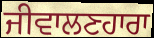
ਜੀਵਾਲਣਹਾਰਾ